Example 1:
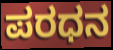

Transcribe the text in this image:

ಪರಧನ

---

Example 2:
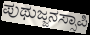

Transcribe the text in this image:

ಪುಥುಜ್ಜನಸ್ಸಾಪಿ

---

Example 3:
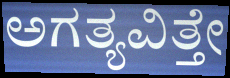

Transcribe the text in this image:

ಅಗತ್ಯವಿತ್ತೇ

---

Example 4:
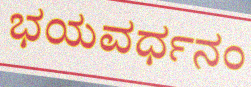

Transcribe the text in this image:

ಭಯವರ್ಧನಂ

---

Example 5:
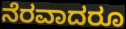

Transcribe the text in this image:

ನೆರವಾದರೂ